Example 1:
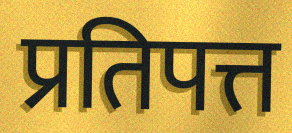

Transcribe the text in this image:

प्रतिपत्त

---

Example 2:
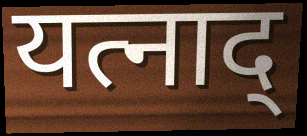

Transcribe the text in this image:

यत्नाद्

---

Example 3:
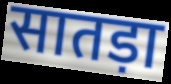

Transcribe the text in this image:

सातड़ा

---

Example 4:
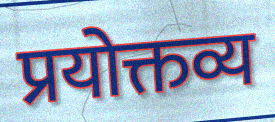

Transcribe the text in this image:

प्रयोक्तव्य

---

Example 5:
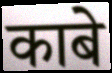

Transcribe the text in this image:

काबे